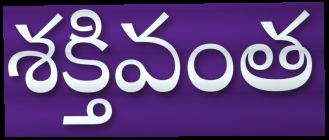
శక్తివంత